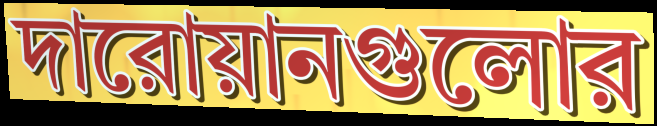
দারোয়ানগুলোর